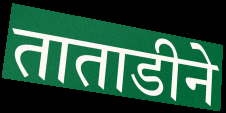
ताताडीने